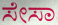
ಸೇಸಾ